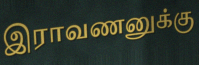
இராவணனுக்கு